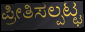
ಪ್ರೀತಿಸಲ್ಪಟ್ಟ